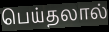
பெய்தலால்